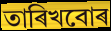
তাৰিখবোৰ